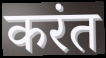
करंत